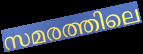
സമരത്തിലെ